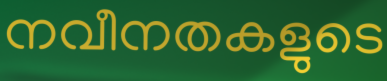
നവീനതകളുടെ